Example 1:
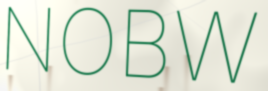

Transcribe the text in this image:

NOBW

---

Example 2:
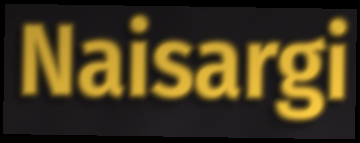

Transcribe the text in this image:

Naisargi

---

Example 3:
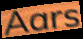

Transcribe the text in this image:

Aars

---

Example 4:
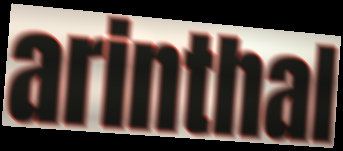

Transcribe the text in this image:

arinthal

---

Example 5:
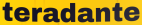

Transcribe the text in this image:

teradante